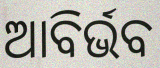
ଆବିର୍ଭବ